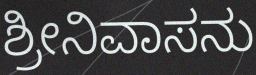
ಶ್ರೀನಿವಾಸನು